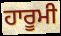
ਹਾਰੂਮੀ